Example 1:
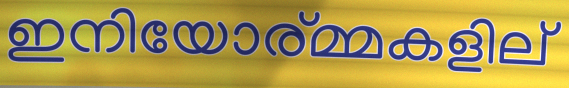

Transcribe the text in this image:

ഇനിയോര്മ്മകളില്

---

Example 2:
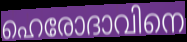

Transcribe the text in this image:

ഹെരോദാവിനെ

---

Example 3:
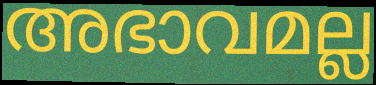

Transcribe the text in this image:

അഭാവമല്ല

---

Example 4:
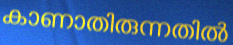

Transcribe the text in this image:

കാണാതിരുന്നതിൽ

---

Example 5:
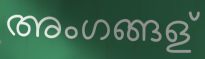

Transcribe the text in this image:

അംഗങ്ങള്